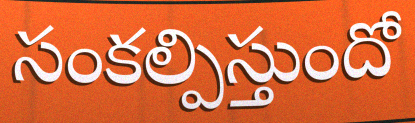
సంకల్పిస్తుందో